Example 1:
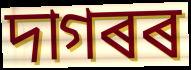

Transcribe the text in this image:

দাগৰৰ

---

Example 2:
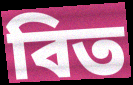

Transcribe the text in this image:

বিত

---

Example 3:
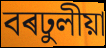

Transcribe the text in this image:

বৰঢুলীয়া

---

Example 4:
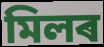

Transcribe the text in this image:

মিলৰ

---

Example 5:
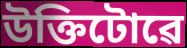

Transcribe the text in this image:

উক্তিটোৱে